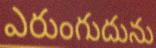
ఎరుంగుదును